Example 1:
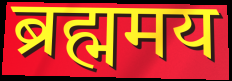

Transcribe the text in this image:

ब्रह्ममय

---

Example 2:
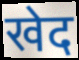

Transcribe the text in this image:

खेद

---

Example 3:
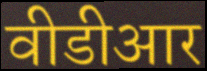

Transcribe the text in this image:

वीडीआर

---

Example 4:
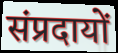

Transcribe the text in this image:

संप्रदायों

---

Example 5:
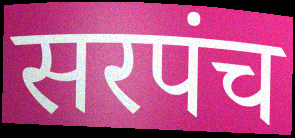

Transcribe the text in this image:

सरपंच